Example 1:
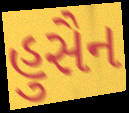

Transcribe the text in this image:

હુસૈન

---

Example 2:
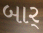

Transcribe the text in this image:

બાર્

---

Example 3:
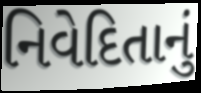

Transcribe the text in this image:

નિવેદિતાનું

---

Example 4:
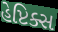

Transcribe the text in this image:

હેપ્ટિક્સ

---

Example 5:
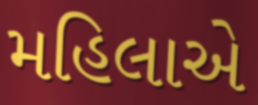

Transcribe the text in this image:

મહિલાએ